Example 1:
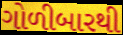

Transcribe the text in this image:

ગોળીબારથી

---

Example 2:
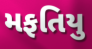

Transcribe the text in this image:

મફતિયુ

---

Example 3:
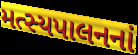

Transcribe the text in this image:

મત્સ્યપાલનનાં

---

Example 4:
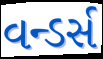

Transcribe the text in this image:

વન્ડર્સ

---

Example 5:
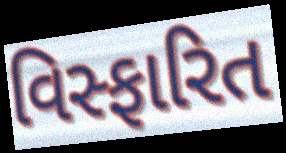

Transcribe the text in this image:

વિસ્ફારિત